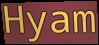
Hyam